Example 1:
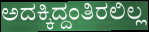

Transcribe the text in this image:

ಅದಕ್ಕಿದ್ದಂತಿರಲಿಲ್ಲ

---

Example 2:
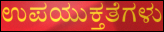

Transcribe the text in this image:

ಉಪಯುಕ್ತತೆಗಳು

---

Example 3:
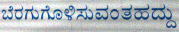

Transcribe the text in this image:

ಬೆರಗುಗೊಳಿಸುವಂತಹದ್ದು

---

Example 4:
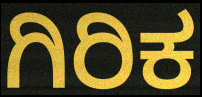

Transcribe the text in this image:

ಗಿರಿಕ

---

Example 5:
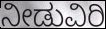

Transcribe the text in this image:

ನೀಡುವಿರಿ